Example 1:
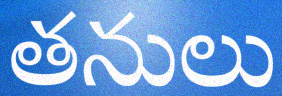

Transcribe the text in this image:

తనులు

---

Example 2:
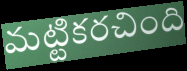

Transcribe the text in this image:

మట్టికరచింది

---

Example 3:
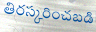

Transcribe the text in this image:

తిరస్కరించబడి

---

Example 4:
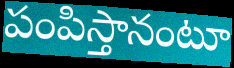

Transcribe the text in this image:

పంపిస్తానంటూ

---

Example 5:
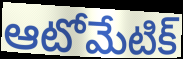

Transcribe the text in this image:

ఆటోమేటిక్